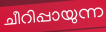
ചീറിപ്പായുന്ന